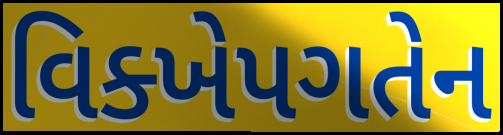
વિક્ખેપગતેન